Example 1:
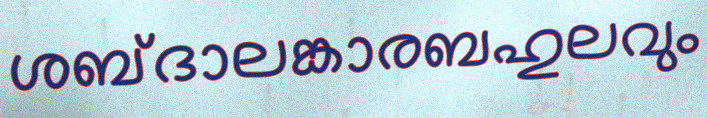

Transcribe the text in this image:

ശബ്ദാലങ്കാരബഹുലവും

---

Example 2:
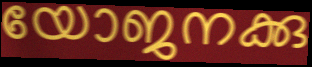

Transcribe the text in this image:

യോജനക്കു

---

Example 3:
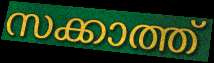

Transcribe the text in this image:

സക്കാത്ത്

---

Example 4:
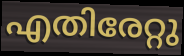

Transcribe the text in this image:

എതിരേറ്റു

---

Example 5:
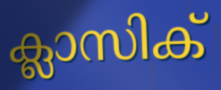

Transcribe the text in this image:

ക്ലാസിക്